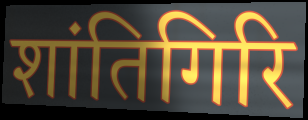
शांतिगिरि